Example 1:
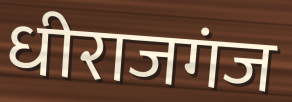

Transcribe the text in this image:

धीराजगंज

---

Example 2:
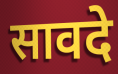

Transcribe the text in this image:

सावदे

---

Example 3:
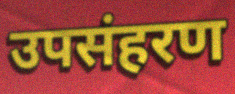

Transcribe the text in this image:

उपसंहरण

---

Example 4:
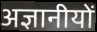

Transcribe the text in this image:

अज्ञानीयों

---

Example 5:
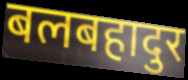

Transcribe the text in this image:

बलबहादुर